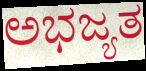
ಅಭಜ್ಯತ